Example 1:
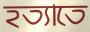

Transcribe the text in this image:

হত্যাতে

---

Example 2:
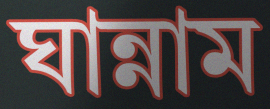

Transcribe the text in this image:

ঘান্নাম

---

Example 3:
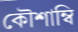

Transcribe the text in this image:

কৌশাম্বি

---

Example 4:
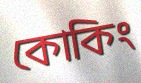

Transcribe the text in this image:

কোকিং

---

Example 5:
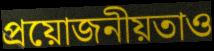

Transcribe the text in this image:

প্রয়োজনীয়তাও